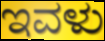
ಇವಳು